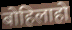
बोहिलाहो